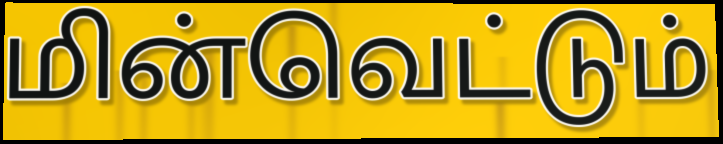
மின்வெட்டும்